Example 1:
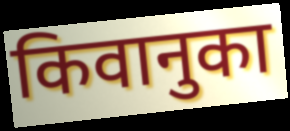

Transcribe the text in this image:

किवानुका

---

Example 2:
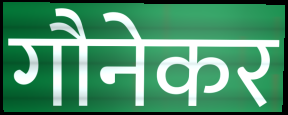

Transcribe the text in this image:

गौनेकर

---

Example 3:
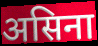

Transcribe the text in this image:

असिना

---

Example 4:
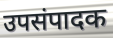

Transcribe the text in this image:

उपसंपादक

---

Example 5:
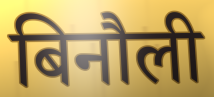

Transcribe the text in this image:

बिनौली